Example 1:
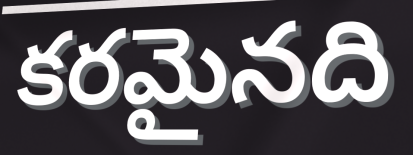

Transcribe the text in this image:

కరమైనది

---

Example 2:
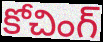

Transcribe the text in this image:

కోచింగ్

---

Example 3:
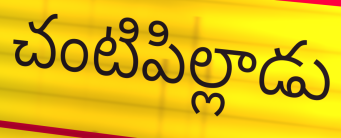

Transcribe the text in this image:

చంటిపిల్లాడు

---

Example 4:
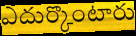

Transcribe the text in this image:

ఎదుర్కొంటారు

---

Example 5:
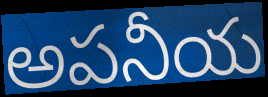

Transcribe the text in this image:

అపనీయ